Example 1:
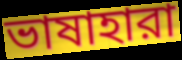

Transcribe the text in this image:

ভাষাহারা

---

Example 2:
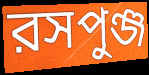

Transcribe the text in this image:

রসপুঞ্জ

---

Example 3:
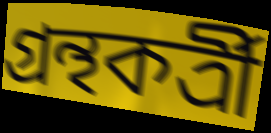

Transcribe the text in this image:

গ্রন্থকর্ত্রী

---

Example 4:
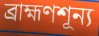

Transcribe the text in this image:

ব্রাহ্মণশূন্য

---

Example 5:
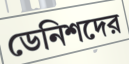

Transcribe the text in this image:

ডেনিশদের